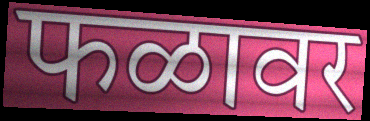
फळावर